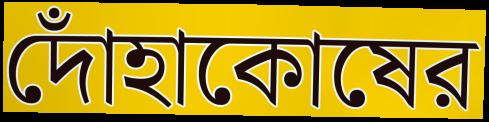
দোঁহাকোষের